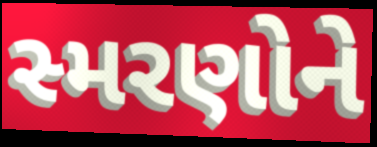
સ્મરણોને